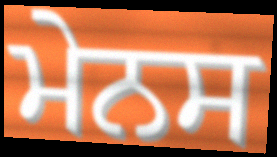
ਮੇਨਸ